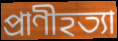
প্রাণীহত্যা